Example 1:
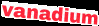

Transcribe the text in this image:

vanadium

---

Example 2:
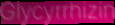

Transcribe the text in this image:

Glycyrrhizin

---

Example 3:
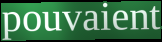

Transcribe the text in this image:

pouvaient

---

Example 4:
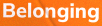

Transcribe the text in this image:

Belonging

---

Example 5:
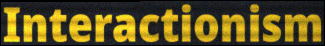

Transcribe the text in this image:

Interactionism